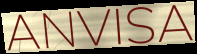
ANVISA